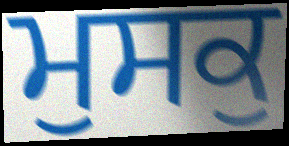
ਮੁਸਕੁ